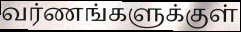
வர்ணங்களுக்குள்